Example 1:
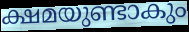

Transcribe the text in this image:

ക്ഷമയുണ്ടാകും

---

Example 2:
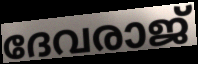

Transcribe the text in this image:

ദേവരാജ്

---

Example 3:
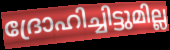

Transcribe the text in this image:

ദ്രോഹിച്ചിട്ടുമില്ല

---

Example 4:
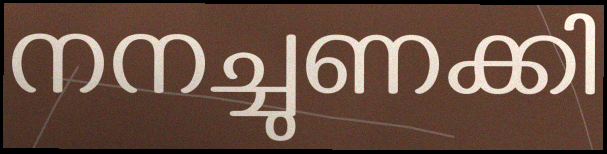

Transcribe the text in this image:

നനച്ചുണക്കി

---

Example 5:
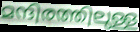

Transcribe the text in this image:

മന്ദിരത്തിലുള്ള